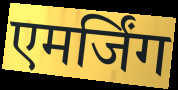
एमर्जिंग